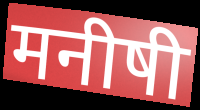
मनीषी